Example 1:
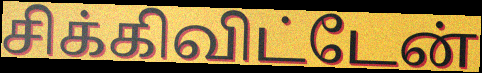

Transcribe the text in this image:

சிக்கிவிட்டேன்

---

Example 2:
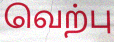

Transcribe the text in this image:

வெற்பு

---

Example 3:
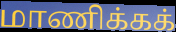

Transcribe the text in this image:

மாணிக்கக்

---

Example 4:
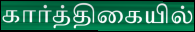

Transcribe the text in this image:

கார்த்திகையில்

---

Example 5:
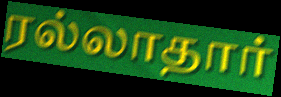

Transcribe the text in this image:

ரல்லாதார்